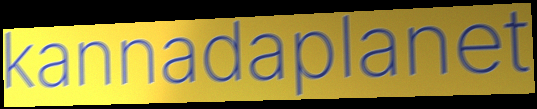
kannadaplanet